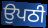
ਉਪਠੀ